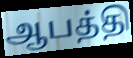
ஆபத்தி